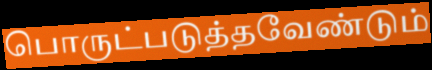
பொருட்படுத்தவேண்டும்